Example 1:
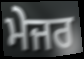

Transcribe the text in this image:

ਮੇਜਰ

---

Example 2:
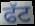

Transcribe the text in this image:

ਫੱਟ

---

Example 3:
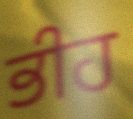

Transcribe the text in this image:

ਭੀਹ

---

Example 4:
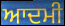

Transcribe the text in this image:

ਆਦਮੀ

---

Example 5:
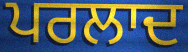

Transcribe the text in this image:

ਪਰਲਾਦ